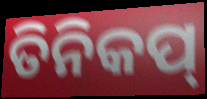
ତିନିକପ୍